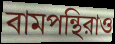
বামপন্থিরাও